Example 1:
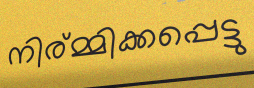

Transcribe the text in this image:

നിര്മ്മിക്കപ്പെട്ടു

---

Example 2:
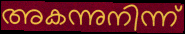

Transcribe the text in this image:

അകന്നുനിന്ന്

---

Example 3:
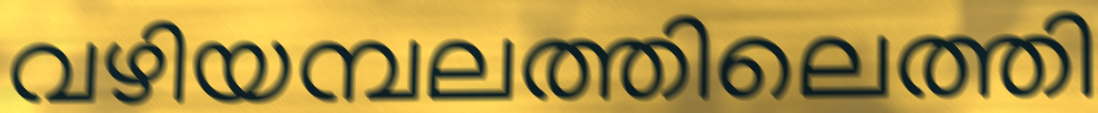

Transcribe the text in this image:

വഴിയമ്പലത്തിലെത്തി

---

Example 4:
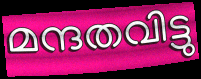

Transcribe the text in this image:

മന്ദതവിട്ടു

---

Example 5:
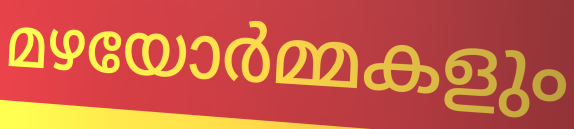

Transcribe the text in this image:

മഴയോർമ്മകളും